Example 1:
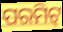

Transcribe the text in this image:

ପରମିଟ୍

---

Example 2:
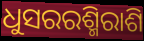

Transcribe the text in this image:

ଧୁସରରଶ୍ମିରାଶି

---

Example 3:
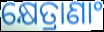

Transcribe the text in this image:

କ୍ଷେତ୍ରାଣାଂ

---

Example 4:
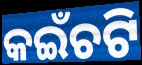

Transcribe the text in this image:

କଇଁଚଟି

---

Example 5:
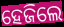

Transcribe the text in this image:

ହେଜିଲେ